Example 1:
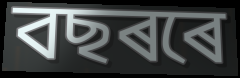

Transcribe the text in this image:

বছৰৰে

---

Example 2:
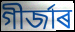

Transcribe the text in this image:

গীৰ্জাৰ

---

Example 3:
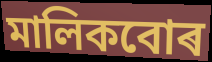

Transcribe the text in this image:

মালিকবোৰ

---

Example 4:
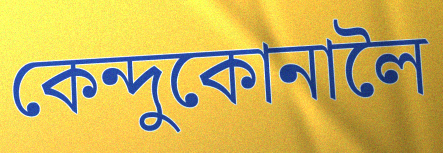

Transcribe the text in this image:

কেন্দুকোনালৈ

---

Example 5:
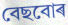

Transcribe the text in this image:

বেছবোৰ